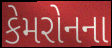
કેમરોનના